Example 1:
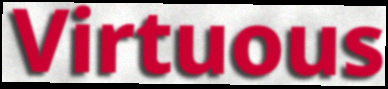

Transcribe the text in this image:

Virtuous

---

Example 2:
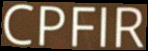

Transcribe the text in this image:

CPFIR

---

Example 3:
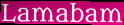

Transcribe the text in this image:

Lamabam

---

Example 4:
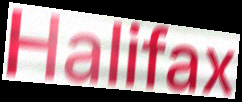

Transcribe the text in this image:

Halifax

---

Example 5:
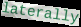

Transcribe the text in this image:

laterally